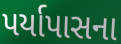
પર્યાપાસના